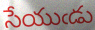
సేయుఁడు